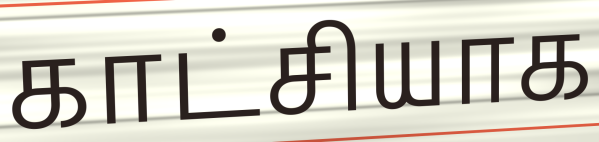
காட்சியாக